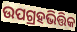
ଉପଗ୍ରହଭିତ୍ତିକ